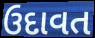
ઉદાવત